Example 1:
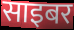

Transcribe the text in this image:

साइबर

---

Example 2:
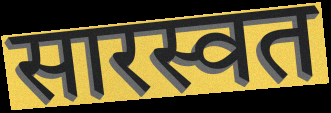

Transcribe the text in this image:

सारस्वत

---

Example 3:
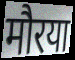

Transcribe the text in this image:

मौरया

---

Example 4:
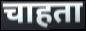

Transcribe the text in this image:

चाहता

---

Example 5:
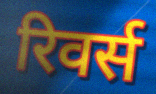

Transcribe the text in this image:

रिवर्स